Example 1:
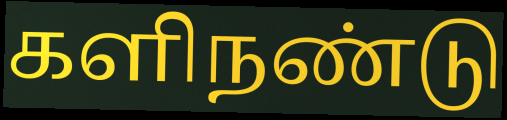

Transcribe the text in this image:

களிநண்டு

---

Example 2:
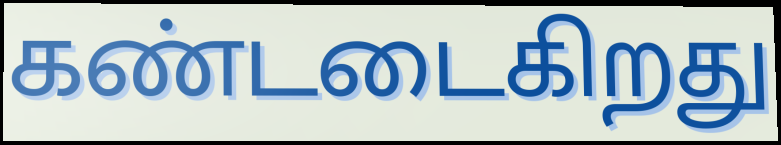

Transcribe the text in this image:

கண்டடைகிறது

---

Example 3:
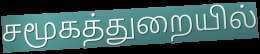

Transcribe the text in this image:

சமூகத்துறையில்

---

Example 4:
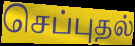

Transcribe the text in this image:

செப்புதல்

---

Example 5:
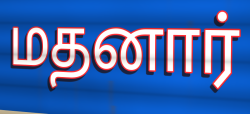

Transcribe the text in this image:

மதனார்